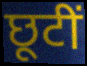
छूटीं